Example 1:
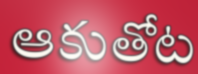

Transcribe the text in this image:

ఆకుతోట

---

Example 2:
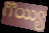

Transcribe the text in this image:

గొయ్యి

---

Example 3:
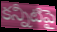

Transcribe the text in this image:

కన్నీటిపై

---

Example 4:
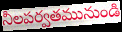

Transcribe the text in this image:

నీలపర్వతమునుండి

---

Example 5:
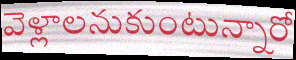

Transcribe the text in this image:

వెళ్లాలనుకుంటున్నారో